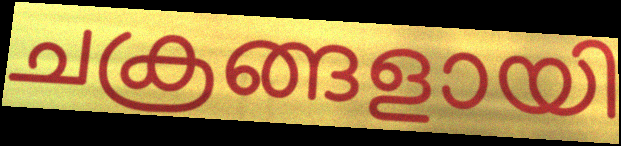
ചക്രങ്ങളായി